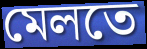
মেলতে